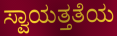
ಸ್ವಾಯತ್ತತೆಯ